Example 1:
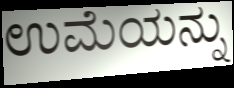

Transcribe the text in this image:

ಉಮೆಯನ್ನು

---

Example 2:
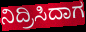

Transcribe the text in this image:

ನಿದ್ರಿಸಿದಾಗ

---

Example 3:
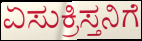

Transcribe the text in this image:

ಏಸುಕ್ರಿಸ್ತನಿಗೆ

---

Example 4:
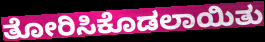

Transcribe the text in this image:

ತೋರಿಸಿಕೊಡಲಾಯಿತು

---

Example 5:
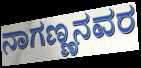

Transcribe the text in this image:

ನಾಗಣ್ಣನವರ